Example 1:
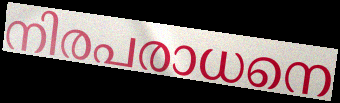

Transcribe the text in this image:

നിരപരാധനെ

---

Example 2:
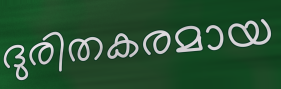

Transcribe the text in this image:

ദുരിതകരമായ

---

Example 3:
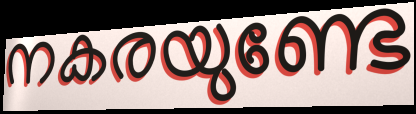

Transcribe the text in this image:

നകരയുണ്ടേ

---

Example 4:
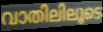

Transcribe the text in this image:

വാതിലിലൂടെ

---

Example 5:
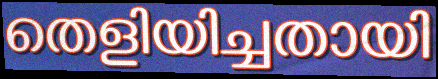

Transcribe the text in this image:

തെളിയിച്ചതായി